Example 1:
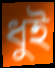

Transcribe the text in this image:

ধুই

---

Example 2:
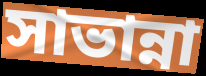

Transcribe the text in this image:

সাভান্না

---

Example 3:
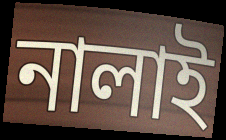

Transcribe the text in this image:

নালাই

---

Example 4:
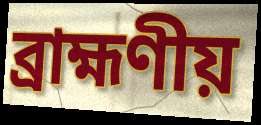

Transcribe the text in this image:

ব্রাহ্মণীয়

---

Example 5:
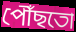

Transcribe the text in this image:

পৌঁছতো